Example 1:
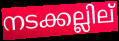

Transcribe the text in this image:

നടക്കല്ലില്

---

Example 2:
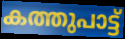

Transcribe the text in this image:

കത്തുപാട്ട്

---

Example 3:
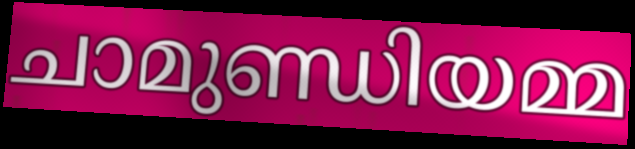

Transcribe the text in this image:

ചാമുണ്ഡിയമ്മ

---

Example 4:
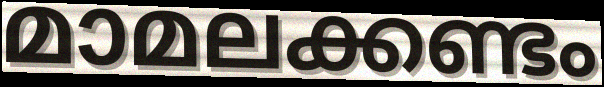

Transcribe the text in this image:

മാമലക്കണ്ടം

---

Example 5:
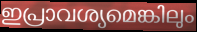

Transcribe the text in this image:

ഇപ്രാവശ്യമെങ്കിലും